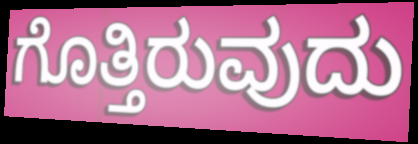
ಗೊತ್ತಿರುವುದು